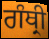
ਗੰਥ੍ਰੀ